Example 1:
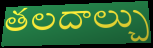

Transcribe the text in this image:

తలదాల్చు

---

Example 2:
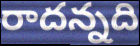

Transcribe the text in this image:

రాదన్నది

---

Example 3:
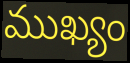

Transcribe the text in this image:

ముఖ్యం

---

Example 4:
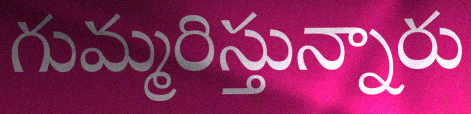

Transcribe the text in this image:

గుమ్మరిస్తున్నారు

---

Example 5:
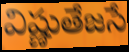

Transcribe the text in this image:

విష్ణుతేజసే